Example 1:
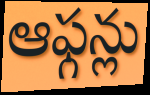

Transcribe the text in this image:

ఆఫ్గన్లు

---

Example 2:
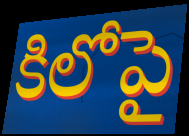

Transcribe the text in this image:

కిలోపై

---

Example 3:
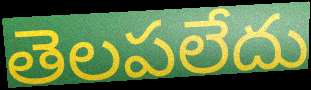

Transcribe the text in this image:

తెలపలేదు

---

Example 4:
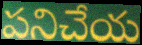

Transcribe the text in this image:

పనిచేయ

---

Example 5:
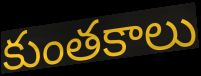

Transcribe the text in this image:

కుంతకాలు